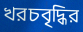
খরচবৃদ্ধির